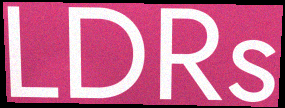
LDRs